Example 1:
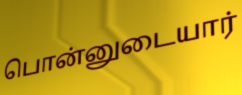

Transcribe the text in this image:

பொன்னுடையார்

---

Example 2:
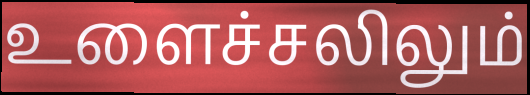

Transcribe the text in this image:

உளைச்சலிலும்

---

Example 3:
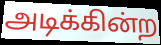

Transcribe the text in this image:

அடிக்கின்ற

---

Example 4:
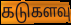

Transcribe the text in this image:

கடுகளவு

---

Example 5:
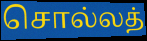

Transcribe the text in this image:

சொல்லத்